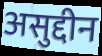
असुद्दीन